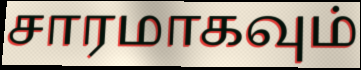
சாரமாகவும்